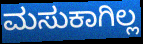
ಮಸುಕಾಗಿಲ್ಲ